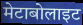
मेटाबोलाइट